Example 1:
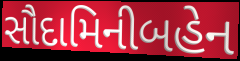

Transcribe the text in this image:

સૌદામિનીબહેન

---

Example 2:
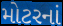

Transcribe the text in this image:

મોટરનાં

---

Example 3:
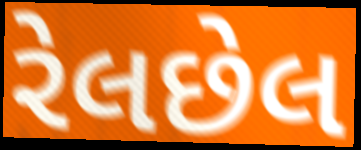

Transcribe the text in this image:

રેલછેલ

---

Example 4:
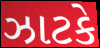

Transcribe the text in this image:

ઝાટકે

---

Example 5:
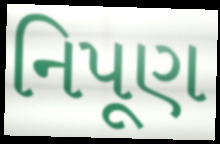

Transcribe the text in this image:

નિપૂણ